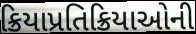
ક્રિયાપ્રતિક્રિયાઓની